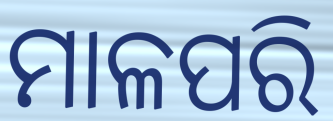
ମାଳପରି